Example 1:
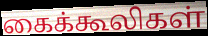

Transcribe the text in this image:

கைக்கூலிகள்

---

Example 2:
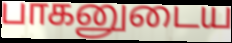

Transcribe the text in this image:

பாகனுடைய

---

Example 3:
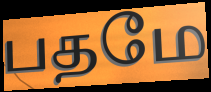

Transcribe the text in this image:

பதமே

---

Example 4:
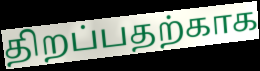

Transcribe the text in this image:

திறப்பதற்காக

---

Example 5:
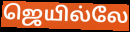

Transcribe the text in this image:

ஜெயில்லே